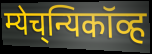
म्येच्‌न्यिकॉव्ह